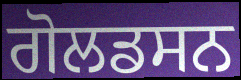
ਗੋਲਡਸਨ